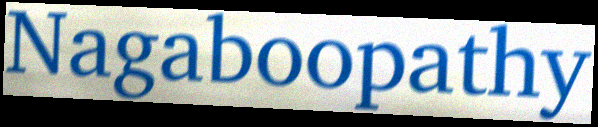
Nagaboopathy